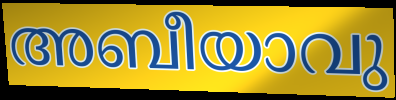
അബീയാവു